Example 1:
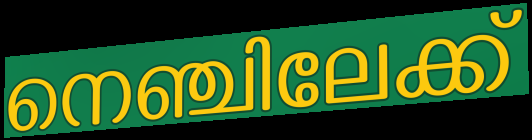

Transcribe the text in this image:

നെഞ്ചിലേക്ക്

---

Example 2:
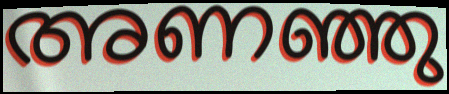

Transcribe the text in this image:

അണഞ്ഞു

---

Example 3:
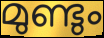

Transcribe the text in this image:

മുണ്ടും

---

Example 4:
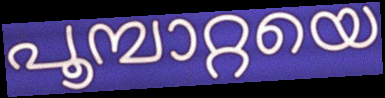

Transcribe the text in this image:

പൂമ്പാറ്റയെ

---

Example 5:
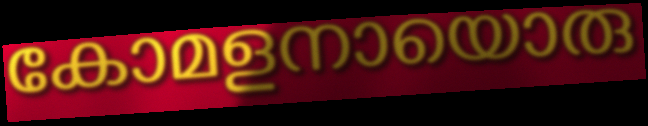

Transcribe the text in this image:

കോമളനായൊരു